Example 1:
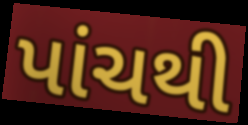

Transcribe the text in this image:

પાંચથી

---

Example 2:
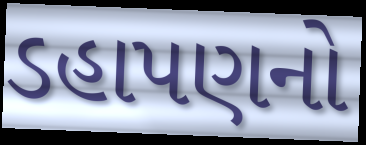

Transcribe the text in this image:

ડહાપણનો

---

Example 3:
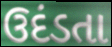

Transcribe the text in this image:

ઉદંડતા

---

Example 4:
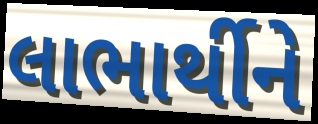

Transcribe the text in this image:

લાભાર્થીને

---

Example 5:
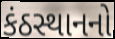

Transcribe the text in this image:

કંઠસ્થાનનો